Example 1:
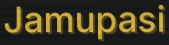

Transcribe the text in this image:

Jamupasi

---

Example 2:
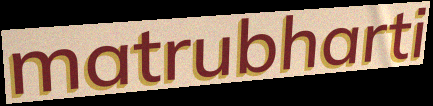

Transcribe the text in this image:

matrubharti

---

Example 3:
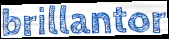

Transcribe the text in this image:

brillantor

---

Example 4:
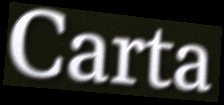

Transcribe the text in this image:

Carta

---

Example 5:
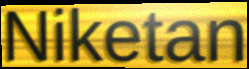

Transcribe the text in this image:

Niketan